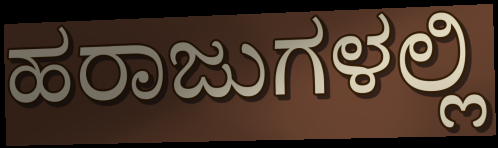
ಹರಾಜುಗಳಲ್ಲಿ